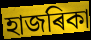
হাজৰিকা